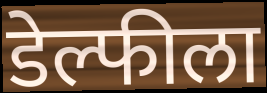
डेल्फीला